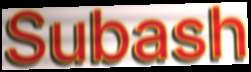
Subash